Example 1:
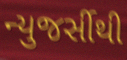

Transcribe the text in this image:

ન્યુજર્સીથી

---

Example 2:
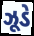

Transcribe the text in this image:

ઝૂડે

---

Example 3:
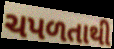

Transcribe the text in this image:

ચપળતાથી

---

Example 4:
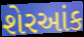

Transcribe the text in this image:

શેરઆંક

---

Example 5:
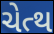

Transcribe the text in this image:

ચેત્થ